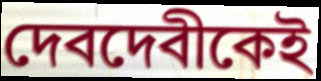
দেবদেবীকেই